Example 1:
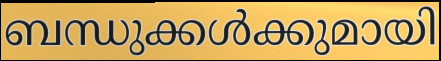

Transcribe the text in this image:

ബന്ധുക്കൾക്കുമായി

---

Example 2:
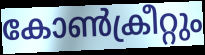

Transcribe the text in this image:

കോൺക്രീറ്റും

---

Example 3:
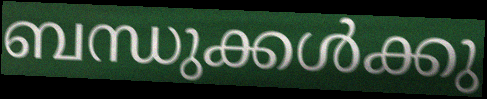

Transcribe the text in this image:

ബന്ധുക്കൾക്കു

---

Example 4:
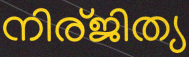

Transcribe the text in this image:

നിര്ജിത്യ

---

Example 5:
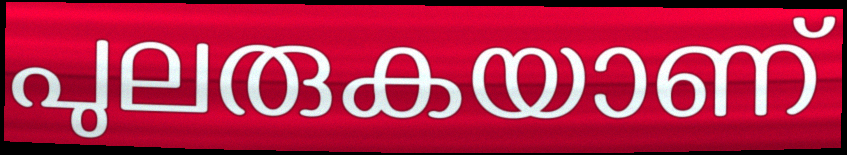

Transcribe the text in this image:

പുലരുകയാണ്